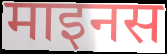
माइनस